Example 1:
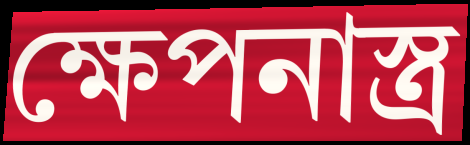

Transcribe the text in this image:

ক্ষেপনাস্ত্র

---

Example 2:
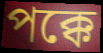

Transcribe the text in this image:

পক্কে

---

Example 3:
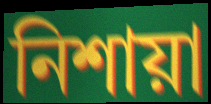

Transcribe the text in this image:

নিশায়া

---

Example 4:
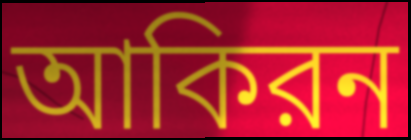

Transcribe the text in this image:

আকিরন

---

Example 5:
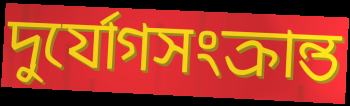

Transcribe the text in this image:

দুর্যোগসংক্রান্ত